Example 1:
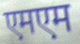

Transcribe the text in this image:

एमएम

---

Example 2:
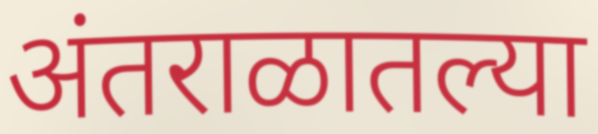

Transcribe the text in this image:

अंतराळातल्या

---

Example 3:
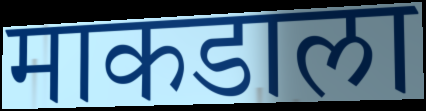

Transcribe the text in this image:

माकडाला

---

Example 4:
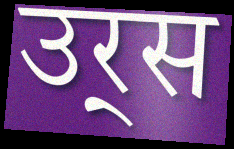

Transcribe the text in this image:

उर्स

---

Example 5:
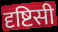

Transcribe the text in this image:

दृष्टिसी